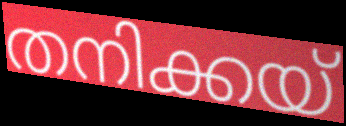
തനിക്കയ്